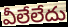
వీలేలేదు